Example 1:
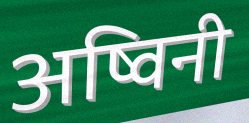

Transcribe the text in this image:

अष्विनी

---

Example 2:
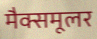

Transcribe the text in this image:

मैक्समूलर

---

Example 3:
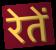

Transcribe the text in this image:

रेतें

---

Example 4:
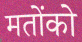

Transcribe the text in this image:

मतोंको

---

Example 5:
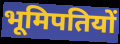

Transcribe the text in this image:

भूमिपतियों